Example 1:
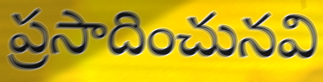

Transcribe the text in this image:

ప్రసాదించునవి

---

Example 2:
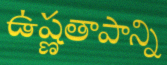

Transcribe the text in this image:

ఉష్ణతాపాన్ని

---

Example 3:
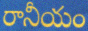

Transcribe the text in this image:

రానీయం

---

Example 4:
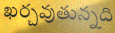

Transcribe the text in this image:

ఖర్చవుతున్నది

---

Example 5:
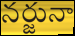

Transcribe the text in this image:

నర్జునా